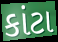
કાંટા